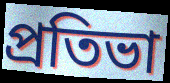
প্ৰতিভা